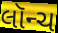
લૉન્ચ